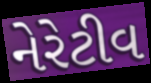
નેરેટીવ